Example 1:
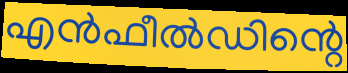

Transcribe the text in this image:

എൻഫീൽഡിന്റെ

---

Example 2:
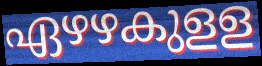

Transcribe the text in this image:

ഏഴഴകുളള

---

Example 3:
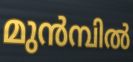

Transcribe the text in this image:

മുൻമ്പിൽ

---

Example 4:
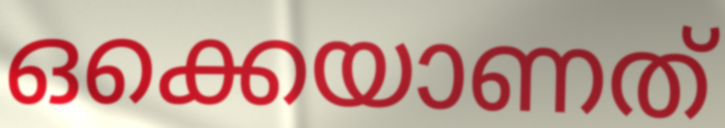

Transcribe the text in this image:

ഒക്കെയാണത്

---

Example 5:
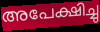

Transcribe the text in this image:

അപേക്ഷിച്ചു